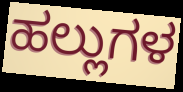
ಹಲ್ಲುಗಳ